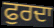
ਫੁਰਦਾ